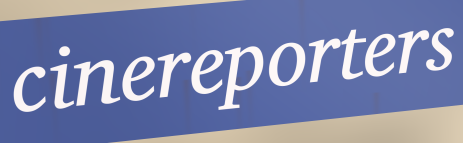
cinereporters